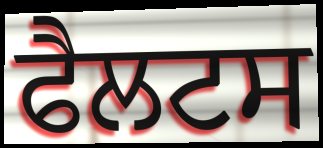
ਫੈਲਟਸ